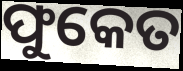
ଫୁକେତ